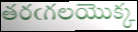
తరఁగలయొక్క